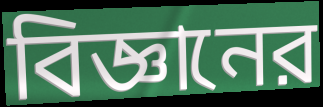
বিজ্ঞানের